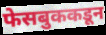
फेसबुककडून